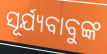
ସୂର୍ଯ୍ୟବାବୁଙ୍କ